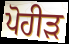
ਪੋਹੀੜ